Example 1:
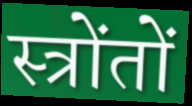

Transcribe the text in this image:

स्त्रोंतों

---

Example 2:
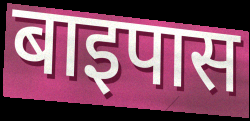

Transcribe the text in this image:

बाइपास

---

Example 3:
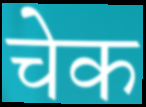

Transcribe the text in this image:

चेक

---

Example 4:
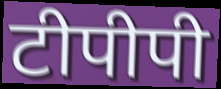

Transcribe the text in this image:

टीपीपी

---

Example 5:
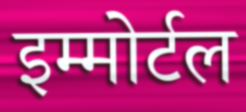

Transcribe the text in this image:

इम्मोर्टल